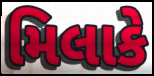
મિલાકે